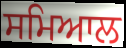
ਸਮਿਆਲ